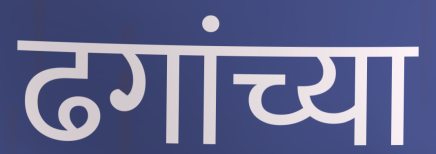
ढगांच्या